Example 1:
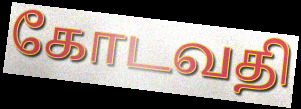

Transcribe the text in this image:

கோடவதி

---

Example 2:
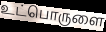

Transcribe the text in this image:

உட்பொருளை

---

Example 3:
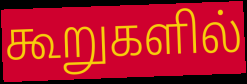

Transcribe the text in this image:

கூறுகளில்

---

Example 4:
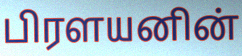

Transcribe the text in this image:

பிரளயனின்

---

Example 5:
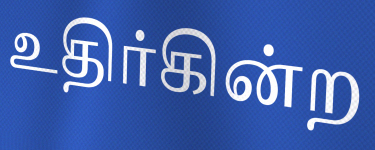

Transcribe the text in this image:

உதிர்கின்ற